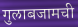
गुलाबजामची